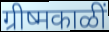
ग्रीष्मकाळीं